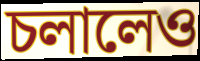
চলালেও